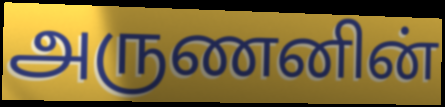
அருணனின்